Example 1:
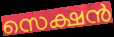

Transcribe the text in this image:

സെക്ഷൻ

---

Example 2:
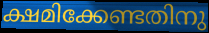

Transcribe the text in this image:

ക്ഷമിക്കേണ്ടതിനു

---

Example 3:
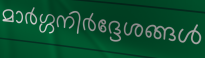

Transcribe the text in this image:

മാർഗ്ഗനിർദ്ദേശങ്ങൾ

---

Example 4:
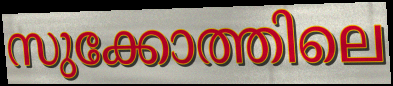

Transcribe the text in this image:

സുക്കോത്തിലെ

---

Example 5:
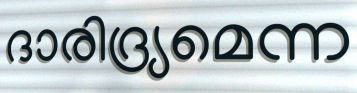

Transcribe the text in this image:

ദാരിദ്ര്യമെന്ന